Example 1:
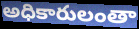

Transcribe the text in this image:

అధికారులంతా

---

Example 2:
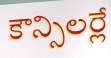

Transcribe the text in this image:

కౌన్సిలర్లే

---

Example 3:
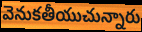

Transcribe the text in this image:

వెనుకతీయుచున్నారు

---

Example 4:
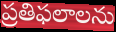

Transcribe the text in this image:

ప్రతిఫలాలను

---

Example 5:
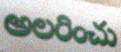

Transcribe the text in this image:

అలరించు